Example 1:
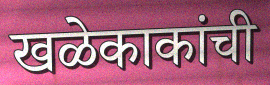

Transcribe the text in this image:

खळेकाकांची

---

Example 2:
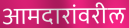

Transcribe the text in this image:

आमदारांवरील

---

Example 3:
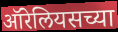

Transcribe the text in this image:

ऑरेलियसच्या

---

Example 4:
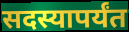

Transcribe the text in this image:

सदस्यापर्यंत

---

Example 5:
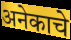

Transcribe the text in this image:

अनेकाचे